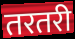
तरतरी